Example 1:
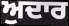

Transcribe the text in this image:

ਅੁਦਾਰ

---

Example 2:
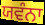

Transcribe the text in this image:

ਯਵੰਨਾ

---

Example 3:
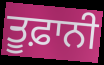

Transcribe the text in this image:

ਤੂਫ਼ਾਨੀ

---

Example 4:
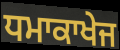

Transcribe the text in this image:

ਧਮਾਕਾਖੇਜ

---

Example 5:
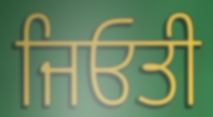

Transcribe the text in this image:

ਜਿਓਤੀ